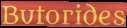
Butorides